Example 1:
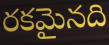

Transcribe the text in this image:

రకమైనది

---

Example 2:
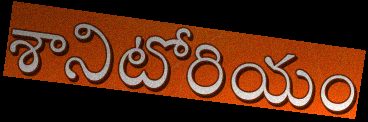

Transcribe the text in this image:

శానిటోరియం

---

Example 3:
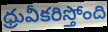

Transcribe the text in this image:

ధ్రువీకరిస్తోంది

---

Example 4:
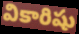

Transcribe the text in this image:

వికారిషు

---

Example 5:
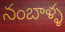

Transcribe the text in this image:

నంబాళ్ళ